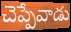
చెప్పేవాడు